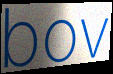
bov